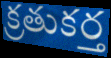
క్రతుకర్త